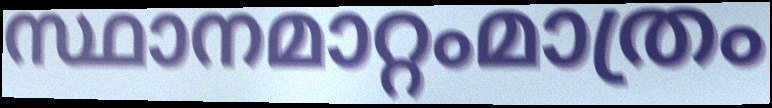
സ്ഥാനമാറ്റംമാത്രം